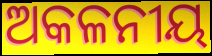
ଅକଳନୀୟ